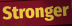
Stronger